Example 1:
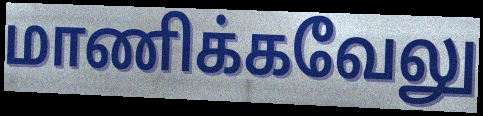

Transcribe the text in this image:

மாணிக்கவேலு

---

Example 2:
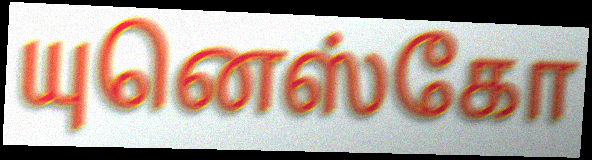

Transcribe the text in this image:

யுனெஸ்கோ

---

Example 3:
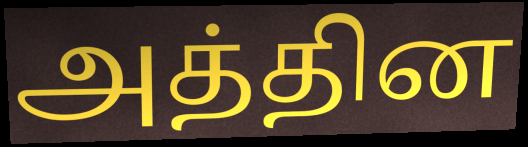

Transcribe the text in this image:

அத்தின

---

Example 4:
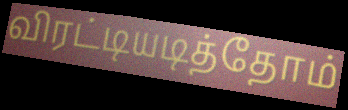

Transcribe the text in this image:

விரட்டியடித்தோம்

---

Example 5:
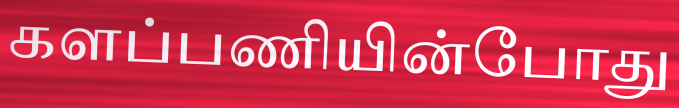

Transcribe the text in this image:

களப்பணியின்போது